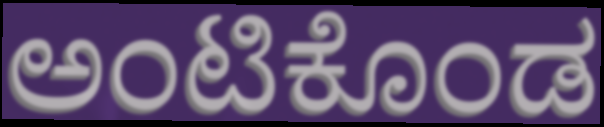
ಅಂಟಿಕೊಂಡ